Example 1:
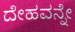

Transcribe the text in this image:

ದೇಹವನ್ನೇ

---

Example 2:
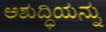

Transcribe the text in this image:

ಅಶುದ್ಧಿಯನ್ನು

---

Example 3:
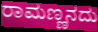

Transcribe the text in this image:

ರಾಮಣ್ಣನದು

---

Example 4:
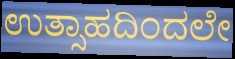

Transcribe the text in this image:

ಉತ್ಸಾಹದಿಂದಲೇ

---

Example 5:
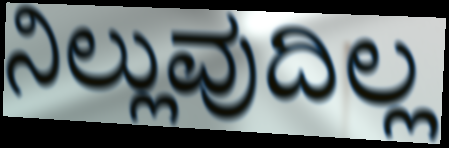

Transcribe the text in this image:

ನಿಲ್ಲುವುದಿಲ್ಲ